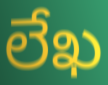
లేఖ